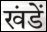
खंडें